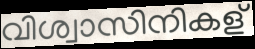
വിശ്വാസിനികള്